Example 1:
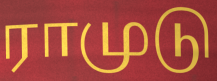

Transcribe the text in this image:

ராமுடு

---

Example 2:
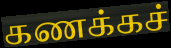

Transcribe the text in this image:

கணக்கச்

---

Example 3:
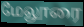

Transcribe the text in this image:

மேலூரை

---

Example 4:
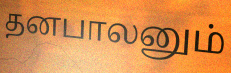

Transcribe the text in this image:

தனபாலனும்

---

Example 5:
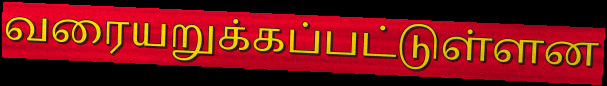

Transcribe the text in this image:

வரையறுக்கப்பட்டுள்ளன